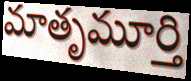
మాతృమూర్తి